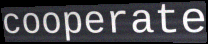
cooperate